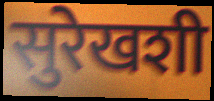
सुरेखशी